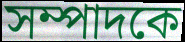
সম্পাদকে